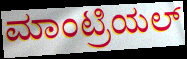
ಮಾಂಟ್ರಿಯಲ್